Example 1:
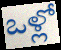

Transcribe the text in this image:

ఒళ్లో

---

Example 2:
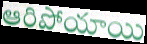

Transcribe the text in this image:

ఆరిపోయాయి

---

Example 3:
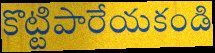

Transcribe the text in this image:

కొట్టిపారేయకండి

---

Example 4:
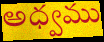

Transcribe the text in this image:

అధ్వము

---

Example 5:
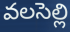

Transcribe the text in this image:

వలసెల్లి